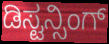
ಡಿಸ್ಟನ್ಸಿಂಗ್